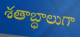
శతాబ్ధాలుగా